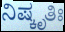
ನಿಷ್ಕೃತಿಃ